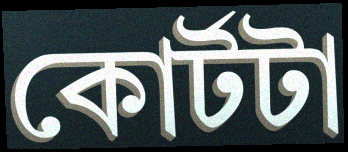
কোর্টটা